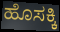
ಹೊಸಕ್ಕಿ